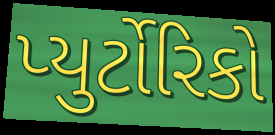
પ્યુર્ટોરિકો